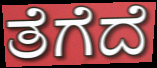
ತೆಗೆದೆ